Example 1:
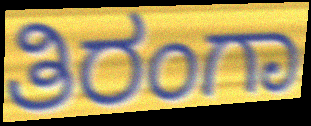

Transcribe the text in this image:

ತಿರಂಗಾ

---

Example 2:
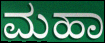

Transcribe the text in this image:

ಮಹಾ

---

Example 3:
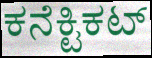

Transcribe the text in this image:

ಕನೆಕ್ಟಿಕಟ್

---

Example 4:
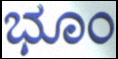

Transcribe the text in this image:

ಭೂಂ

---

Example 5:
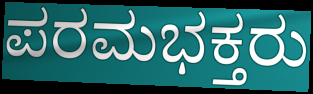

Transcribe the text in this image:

ಪರಮಭಕ್ತರು